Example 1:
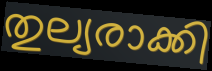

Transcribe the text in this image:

തുല്യരാക്കി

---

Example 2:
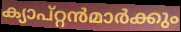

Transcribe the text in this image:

ക്യാപ്റ്റൻമാർക്കും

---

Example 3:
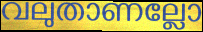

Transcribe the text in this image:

വലുതാണല്ലോ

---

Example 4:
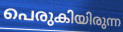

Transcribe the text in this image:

പെരുകിയിരുന്ന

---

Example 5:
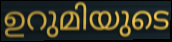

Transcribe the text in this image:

ഉറുമിയുടെ